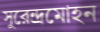
সুরেন্দ্রমোহন